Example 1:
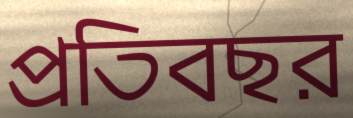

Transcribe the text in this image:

প্রতিবছর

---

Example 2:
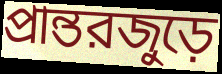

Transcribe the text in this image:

প্রান্তরজুড়ে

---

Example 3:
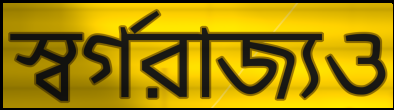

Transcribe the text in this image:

স্বর্গরাজ্যও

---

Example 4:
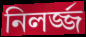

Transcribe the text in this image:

নিলর্জ্জ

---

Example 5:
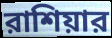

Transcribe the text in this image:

রাশিয়ার